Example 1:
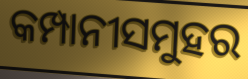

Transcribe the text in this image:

କମ୍ପାନୀସମୁହର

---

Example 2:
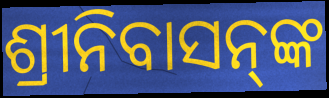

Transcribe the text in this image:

ଶ୍ରୀନିବାସନ୍‌ଙ୍କ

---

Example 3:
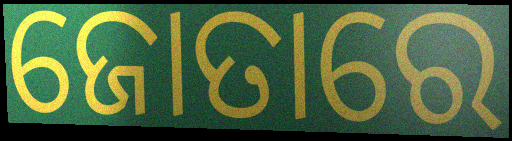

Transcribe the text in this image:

ଜୋତାରେ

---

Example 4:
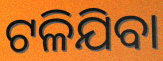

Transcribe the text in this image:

ଟଳିଯିବା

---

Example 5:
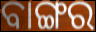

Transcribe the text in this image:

ବାଙ୍ଗର